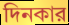
দিনকার